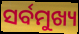
ସର୍ବମୁଖ୍ୟ